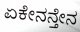
ಏಕೇನನ್ತೇನ